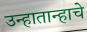
उन्हातान्हाचे